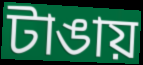
টাঙায়